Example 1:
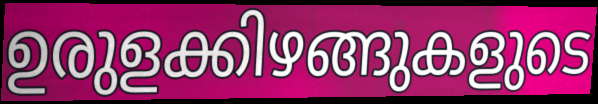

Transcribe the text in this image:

ഉരുളക്കിഴങ്ങുകളുടെ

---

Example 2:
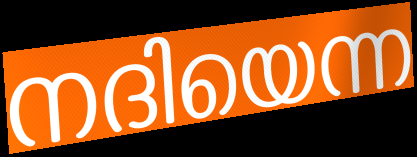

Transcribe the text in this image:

നദിയെന്ന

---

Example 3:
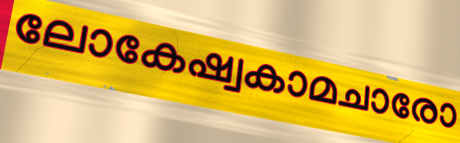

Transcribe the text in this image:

ലോകേഷ്വകാമചാരോ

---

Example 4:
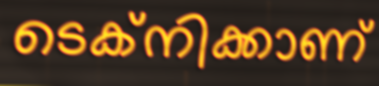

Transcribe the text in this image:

ടെക്നിക്കാണ്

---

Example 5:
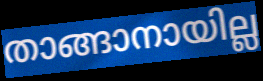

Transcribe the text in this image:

താങ്ങാനായില്ല